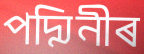
পদ্মিনীৰ